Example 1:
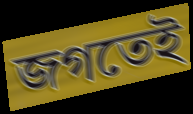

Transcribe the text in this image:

জগতেই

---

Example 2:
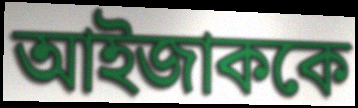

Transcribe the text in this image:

আইজাককে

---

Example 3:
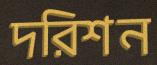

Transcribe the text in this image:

দরিশন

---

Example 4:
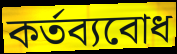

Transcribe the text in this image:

কর্তব্যবোধ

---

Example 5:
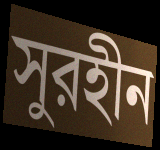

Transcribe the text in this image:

সুরহীন